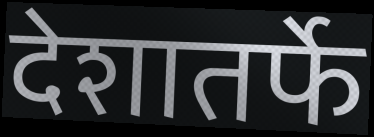
देशातर्फे